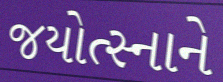
જયોત્સ્નાને